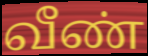
வீண்